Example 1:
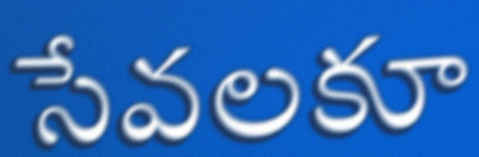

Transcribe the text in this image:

సేవలకూ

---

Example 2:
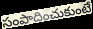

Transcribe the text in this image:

సంపాదించుకుంటే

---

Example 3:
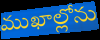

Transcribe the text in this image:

ముఖాల్లోను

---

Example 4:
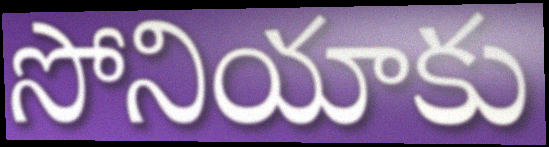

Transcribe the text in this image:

సోనియాకు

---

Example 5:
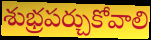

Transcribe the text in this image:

శుభ్రపర్చుకోవాలి